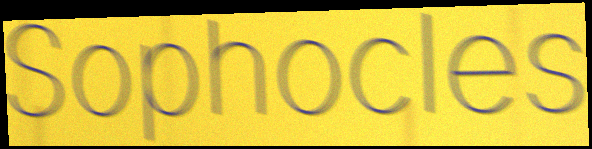
Sophocles